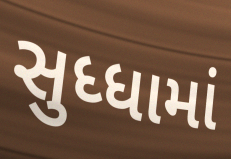
સુધ્ધામાં